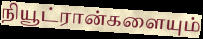
நியூட்ரான்களையும்